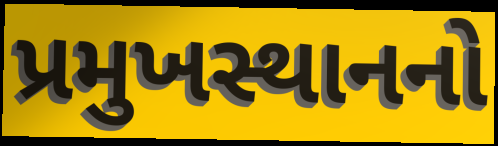
પ્રમુખસ્થાનનો